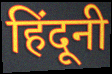
हिंदूनी